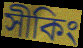
সীকিং